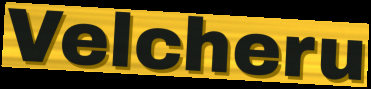
Velcheru